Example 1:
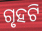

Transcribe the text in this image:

ଗୃହଟି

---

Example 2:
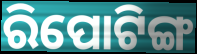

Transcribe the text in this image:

ରିପୋଟିଙ୍ଗ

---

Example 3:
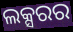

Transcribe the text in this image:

ଲକ୍ସରର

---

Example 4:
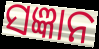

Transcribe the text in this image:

ସଜ୍ଞାନ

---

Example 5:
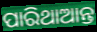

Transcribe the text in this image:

ପାରିଥାଆନ୍ତ